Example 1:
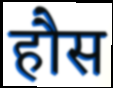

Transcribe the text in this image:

हौस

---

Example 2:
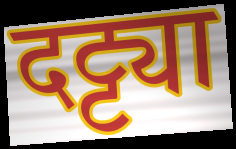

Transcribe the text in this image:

दट्ट्या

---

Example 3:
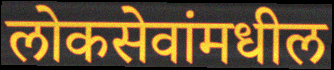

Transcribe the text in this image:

लोकसेवांमधील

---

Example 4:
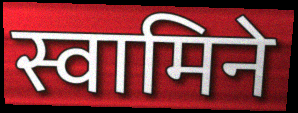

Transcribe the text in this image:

स्वामिने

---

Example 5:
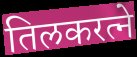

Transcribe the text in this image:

तिलकरत्ने